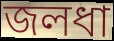
জলধা